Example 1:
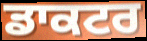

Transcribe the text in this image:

ਡਾਕਟਰ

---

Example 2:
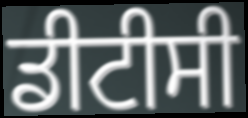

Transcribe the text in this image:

ਡੀਟੀਸੀ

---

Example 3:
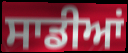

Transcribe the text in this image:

ਸਾਡੀਆਂ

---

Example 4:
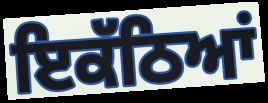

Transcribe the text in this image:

ਇਕੱਠਿਆਂ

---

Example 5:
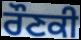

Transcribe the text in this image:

ਰੌਣਕੀ